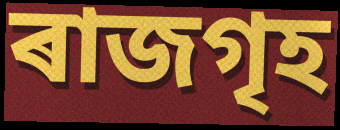
ৰাজগৃহ